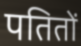
पतितों